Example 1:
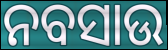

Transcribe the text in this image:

ନବସାଉ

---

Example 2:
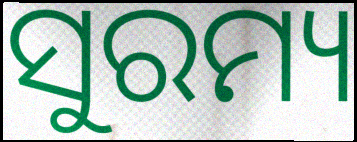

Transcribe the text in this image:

ସୁରମ୍ୟ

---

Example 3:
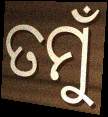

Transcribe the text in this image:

ତମୁଁ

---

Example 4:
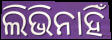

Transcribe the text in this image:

ଲିଭିନାହିଁ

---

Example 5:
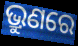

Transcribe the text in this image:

ଭ୍ରୁଣରେ